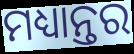
ମଧ୍ୟାନ୍ତର